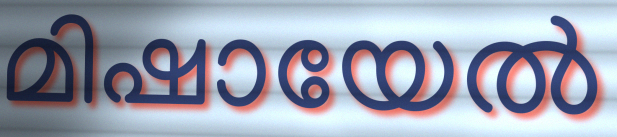
മിഷായേൽ